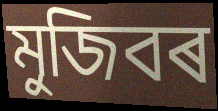
মুজিবৰ